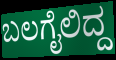
ಬಲಗೈಲಿದ್ದ